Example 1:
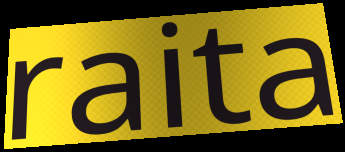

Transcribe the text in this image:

raita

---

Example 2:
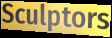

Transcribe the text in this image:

Sculptors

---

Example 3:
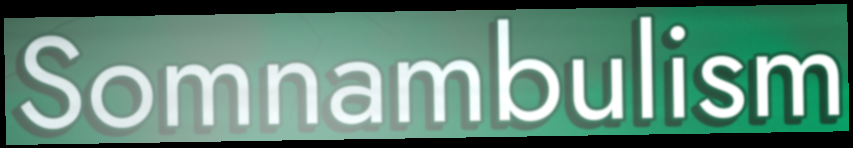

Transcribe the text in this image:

Somnambulism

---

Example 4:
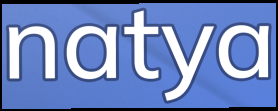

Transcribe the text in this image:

natya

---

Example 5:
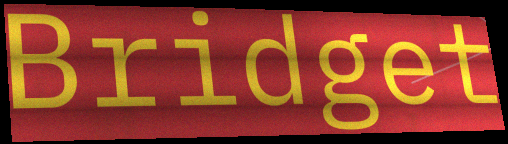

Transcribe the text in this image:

Bridget